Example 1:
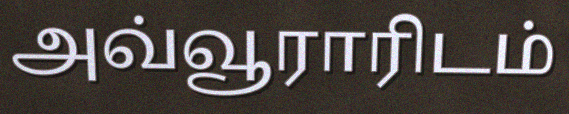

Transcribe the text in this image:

அவ்வூராரிடம்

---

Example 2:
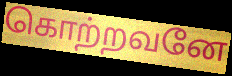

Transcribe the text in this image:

கொற்றவனே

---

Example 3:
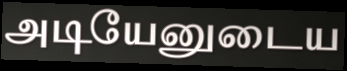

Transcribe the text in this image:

அடியேனுடைய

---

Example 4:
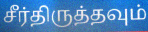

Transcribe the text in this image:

சீர்திருத்தவும்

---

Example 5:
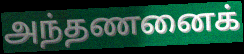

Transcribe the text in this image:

அந்தணனைக்